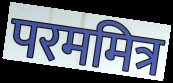
परममित्र